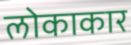
लोकाकार